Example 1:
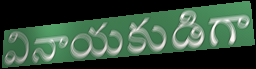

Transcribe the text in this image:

వినాయకుడిగా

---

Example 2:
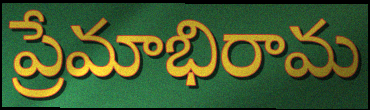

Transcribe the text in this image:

ప్రేమాభిరామ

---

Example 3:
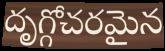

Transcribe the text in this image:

దృగ్గోచరమైన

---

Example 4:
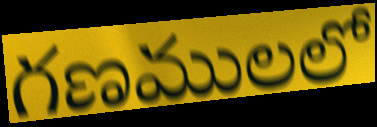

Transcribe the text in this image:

గణములలో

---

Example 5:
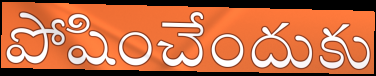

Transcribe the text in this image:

పోషించేందుకు